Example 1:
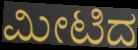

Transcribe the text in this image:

ಮೀಟಿದ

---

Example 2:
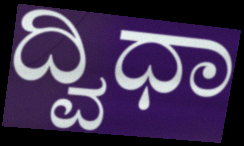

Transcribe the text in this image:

ದ್ವಿಧಾ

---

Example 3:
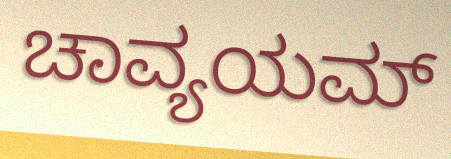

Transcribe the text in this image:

ಚಾವ್ಯಯಮ್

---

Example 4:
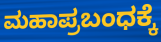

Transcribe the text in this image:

ಮಹಾಪ್ರಬಂಧಕ್ಕೆ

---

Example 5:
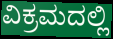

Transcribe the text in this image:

ವಿಕ್ರಮದಲ್ಲಿ